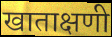
खाताक्षणी